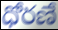
ధోరణే